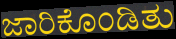
ಜಾರಿಕೊಂಡಿತು